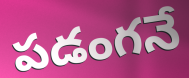
పడంగనే